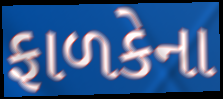
ફાળકેના